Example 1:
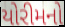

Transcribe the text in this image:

યોરીમનો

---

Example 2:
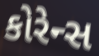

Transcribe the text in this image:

કોરેન્સ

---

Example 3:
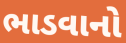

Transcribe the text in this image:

ભાડવાનો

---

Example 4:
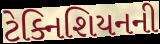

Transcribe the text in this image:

ટેક્નિશિયનની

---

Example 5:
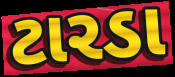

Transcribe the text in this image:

ટારડા